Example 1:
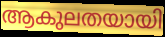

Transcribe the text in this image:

ആകുലതയായി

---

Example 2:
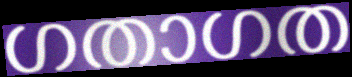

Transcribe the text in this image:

ഗതാഗത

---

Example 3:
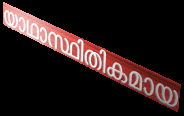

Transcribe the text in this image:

യാഥാസ്ഥിതികമായ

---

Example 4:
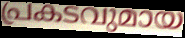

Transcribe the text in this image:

പ്രകടവുമായ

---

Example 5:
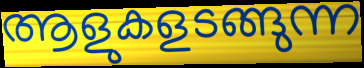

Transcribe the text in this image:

ആളുകളടങ്ങുന്ന